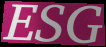
ESG